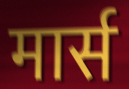
मार्स